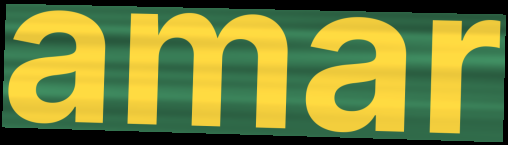
amar